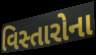
વિસ્તારોના